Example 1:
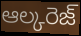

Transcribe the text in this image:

ఆల్కరెజ్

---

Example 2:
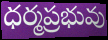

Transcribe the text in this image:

ధర్మప్రభువు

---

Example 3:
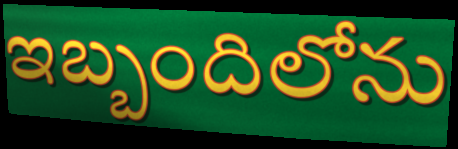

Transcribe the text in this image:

ఇబ్బందిలోను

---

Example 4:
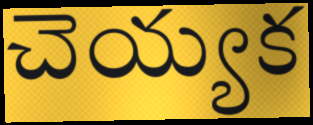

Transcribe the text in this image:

చెయ్యక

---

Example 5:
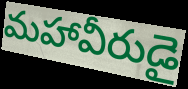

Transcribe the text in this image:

మహావీరుడై